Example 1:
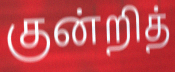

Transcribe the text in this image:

குன்றித்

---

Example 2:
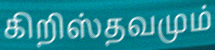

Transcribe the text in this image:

கிறிஸ்தவமும்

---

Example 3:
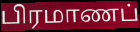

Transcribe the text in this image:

பிரமாணப்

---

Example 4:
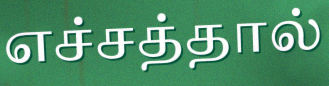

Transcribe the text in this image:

எச்சத்தால்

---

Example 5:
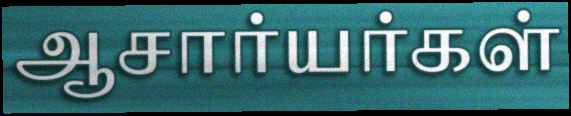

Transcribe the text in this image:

ஆசார்யர்கள்